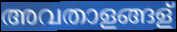
അവതാളങ്ങള്